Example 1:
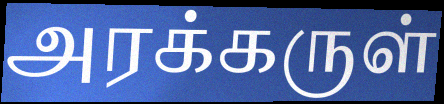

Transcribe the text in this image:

அரக்கருள்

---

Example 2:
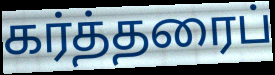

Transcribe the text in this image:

கர்த்தரைப்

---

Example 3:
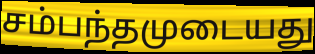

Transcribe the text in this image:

சம்பந்தமுடையது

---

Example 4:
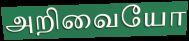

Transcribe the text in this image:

அறிவையோ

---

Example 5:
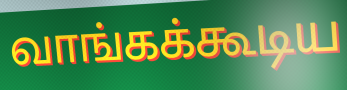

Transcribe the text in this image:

வாங்கக்கூடிய